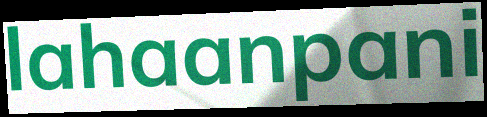
lahaanpani